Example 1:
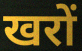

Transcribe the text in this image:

खरों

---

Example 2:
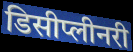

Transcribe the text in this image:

डिसीप्लीनरी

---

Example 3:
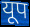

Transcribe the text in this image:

यूप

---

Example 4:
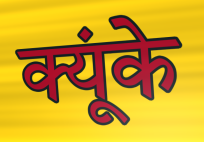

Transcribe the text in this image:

क्यूंके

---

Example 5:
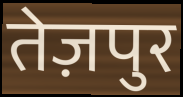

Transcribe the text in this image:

तेज़पुर